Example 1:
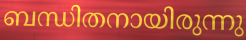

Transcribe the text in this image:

ബന്ധിതനായിരുന്നു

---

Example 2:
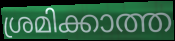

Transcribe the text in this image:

ശ്രമിക്കാത്ത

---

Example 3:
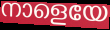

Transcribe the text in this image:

നാളെയേ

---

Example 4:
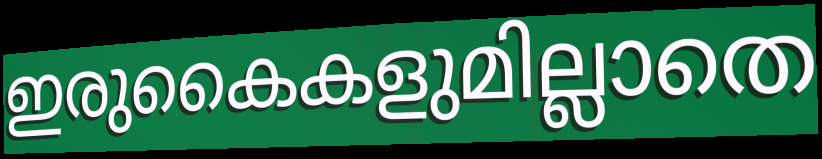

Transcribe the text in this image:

ഇരുകൈകളുമില്ലാതെ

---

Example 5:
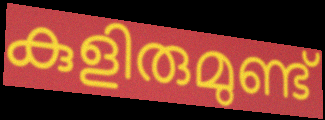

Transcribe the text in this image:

കുളിരുമുണ്ട്